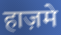
हाज़मे